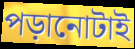
পড়ানোটাই